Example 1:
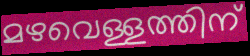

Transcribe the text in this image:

മഴവെള്ളത്തിന്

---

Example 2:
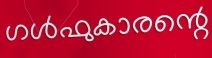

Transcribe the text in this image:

ഗൾഫുകാരന്റെ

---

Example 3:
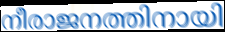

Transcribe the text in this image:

നീരാജനത്തിനായി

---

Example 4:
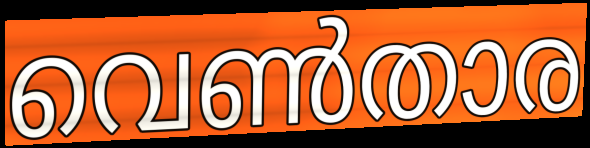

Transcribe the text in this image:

വെൺതാര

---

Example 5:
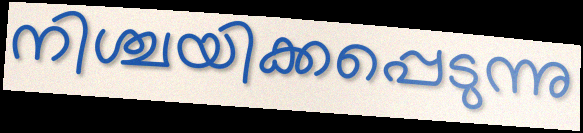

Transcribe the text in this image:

നിശ്ചയിക്കപ്പെടുന്നു